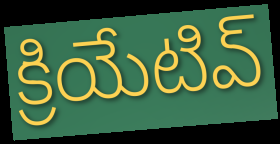
క్రియేటివ్